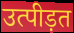
उत्पीड़त